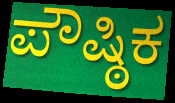
ಪೌಷ್ಠಿಕ